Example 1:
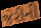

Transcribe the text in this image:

જેરીની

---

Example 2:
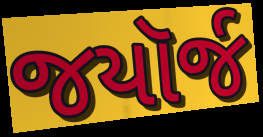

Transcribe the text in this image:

જયૉર્જ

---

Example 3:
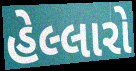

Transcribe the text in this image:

હેલ્લારો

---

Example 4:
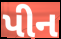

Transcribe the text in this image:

પીન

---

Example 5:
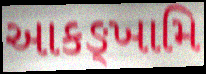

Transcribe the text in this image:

આકઙ્ખામિ